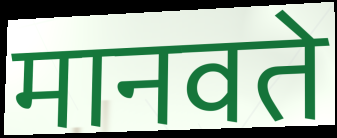
मानवते